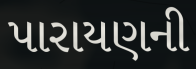
પારાયણની